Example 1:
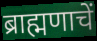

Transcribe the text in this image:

ब्राह्मणाचें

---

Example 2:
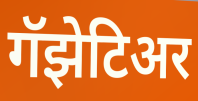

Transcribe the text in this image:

गॅझेटिअर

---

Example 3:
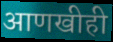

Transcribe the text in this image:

आणखीही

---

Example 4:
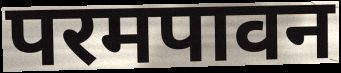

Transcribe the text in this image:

परमपावन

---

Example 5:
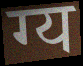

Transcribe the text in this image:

ग्य